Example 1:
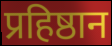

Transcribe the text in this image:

प्रहिष्ठान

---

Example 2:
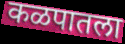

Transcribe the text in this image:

कळपातला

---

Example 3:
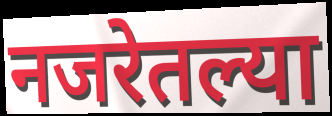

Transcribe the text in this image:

नजरेतल्या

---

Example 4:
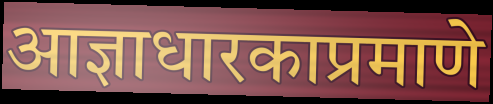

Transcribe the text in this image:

आज्ञाधारकाप्रमाणे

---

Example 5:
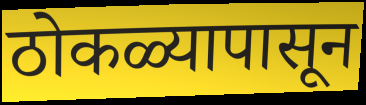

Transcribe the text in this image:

ठोकळ्यापासून